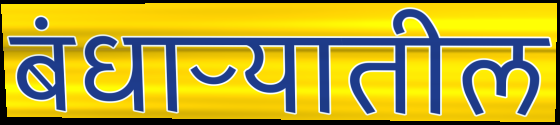
बंधाऱ्यातील